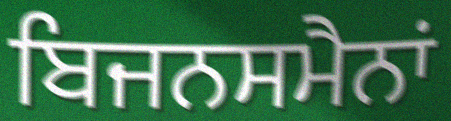
ਬਿਜਨਸਮੈਨਾਂ